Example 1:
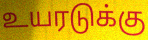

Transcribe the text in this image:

உயரடுக்கு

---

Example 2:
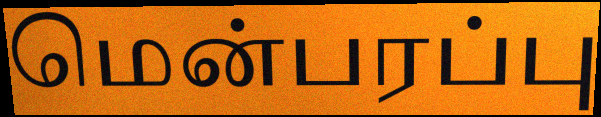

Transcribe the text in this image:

மென்பரப்பு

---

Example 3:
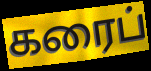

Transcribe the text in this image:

கரைப்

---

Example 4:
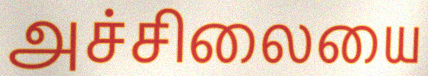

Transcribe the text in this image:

அச்சிலையை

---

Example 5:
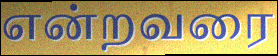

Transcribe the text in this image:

என்றவரை